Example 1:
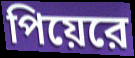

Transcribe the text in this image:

পিয়েরে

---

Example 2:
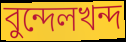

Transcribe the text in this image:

বুন্দেলখন্দ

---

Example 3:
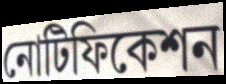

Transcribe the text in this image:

নোটিফিকেশন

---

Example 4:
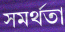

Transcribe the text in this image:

সমর্থতা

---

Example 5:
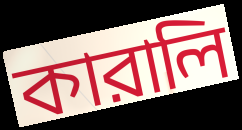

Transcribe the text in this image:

কারালি